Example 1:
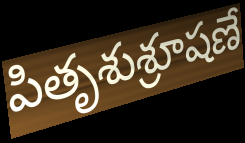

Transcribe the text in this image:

పితృశుశ్రూషణే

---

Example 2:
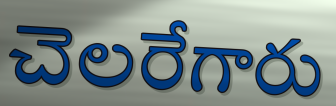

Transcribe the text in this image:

చెలరేగారు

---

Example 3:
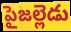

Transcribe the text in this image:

పైజల్లెడు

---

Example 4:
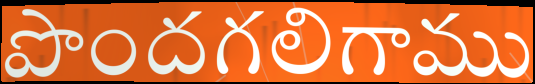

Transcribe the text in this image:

పొందగలిగాము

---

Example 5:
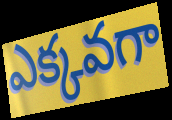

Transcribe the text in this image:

ఎక్కవగా